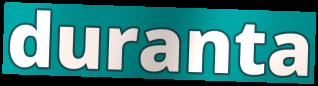
duranta